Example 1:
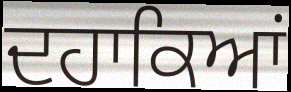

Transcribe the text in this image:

ਦਹਾਕਿਆਂ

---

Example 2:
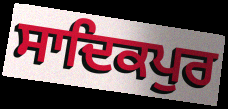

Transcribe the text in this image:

ਸਾਦਿਕਪੁਰ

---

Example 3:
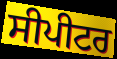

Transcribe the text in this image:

ਸੀਪੀਟਰ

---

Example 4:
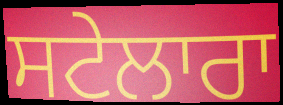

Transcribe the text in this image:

ਸਟੇਲਾਰਾ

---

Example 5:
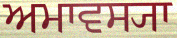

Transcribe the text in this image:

ਅਮਾਵਸ੍ਯਾ